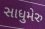
સાધુમેરુ